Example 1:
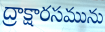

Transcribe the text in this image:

ద్రాక్షారసమును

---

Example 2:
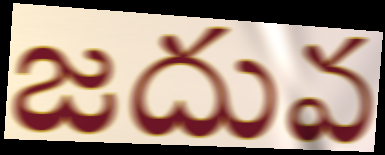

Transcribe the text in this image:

జదువ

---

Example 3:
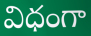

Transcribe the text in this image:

విధంగా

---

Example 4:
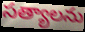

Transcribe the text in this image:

సత్యాలను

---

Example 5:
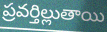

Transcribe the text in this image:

ప్రవర్తిల్లుతాయి